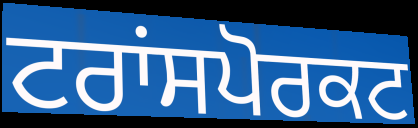
ਟਰਾਂਸਪੋਰਕਟ